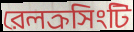
রেলক্রসিংটি